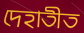
দেহাতীত